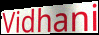
Vidhani